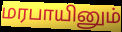
மரபாயினும்